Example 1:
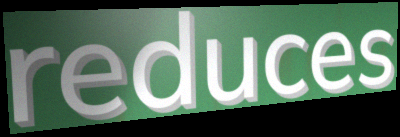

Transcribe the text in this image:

reduces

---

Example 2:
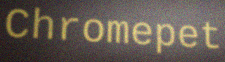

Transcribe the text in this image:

Chromepet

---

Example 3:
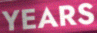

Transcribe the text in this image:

YEARS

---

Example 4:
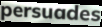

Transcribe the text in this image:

persuades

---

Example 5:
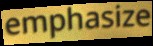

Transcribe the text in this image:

emphasize